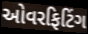
ઓવરફિટિંગ